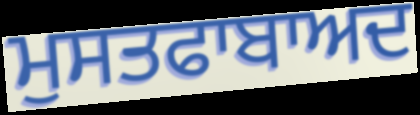
ਮੁਸਤਫਾਬਾਅਦ